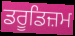
ਡਰੂਡਿਜ਼ਮ